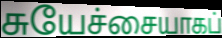
சுயேச்சையாகப்